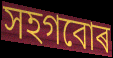
সহগবোৰ